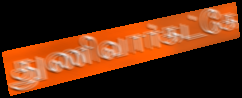
துணிவார்கட்கே